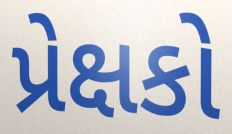
પ્રેક્ષકો